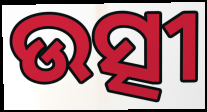
ଉତ୍ସୀ